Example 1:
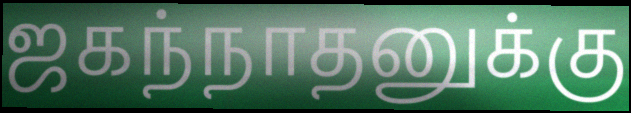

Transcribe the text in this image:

ஜகந்நாதனுக்கு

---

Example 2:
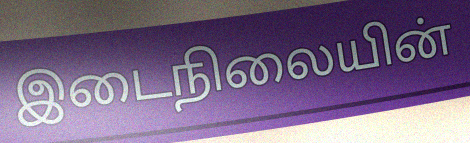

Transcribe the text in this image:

இடைநிலையின்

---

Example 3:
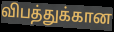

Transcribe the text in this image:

விபத்துக்கான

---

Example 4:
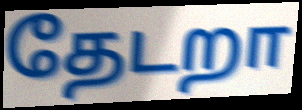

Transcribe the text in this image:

தேடறா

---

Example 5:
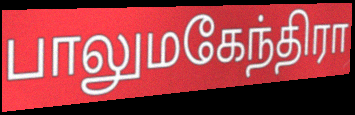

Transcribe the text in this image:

பாலுமகேந்திரா